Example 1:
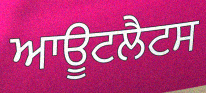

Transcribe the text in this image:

ਆਊਟਲੈਟਸ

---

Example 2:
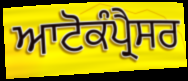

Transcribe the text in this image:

ਆਟੋਕੰਪ੍ਰੈਸਰ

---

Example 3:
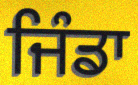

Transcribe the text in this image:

ਜਿੰਡਾ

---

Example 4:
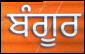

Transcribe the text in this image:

ਬੰਗੂਰ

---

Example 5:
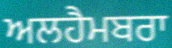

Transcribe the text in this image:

ਅਲਹੈਮਬਰਾ